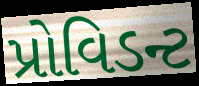
પ્રોવિડન્ટ